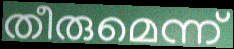
തീരുമെന്ന്